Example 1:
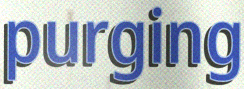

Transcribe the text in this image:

purging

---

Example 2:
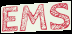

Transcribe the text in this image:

EMS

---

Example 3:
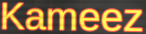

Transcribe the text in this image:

Kameez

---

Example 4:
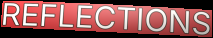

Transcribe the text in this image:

REFLECTIONS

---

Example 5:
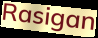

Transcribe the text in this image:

Rasigan